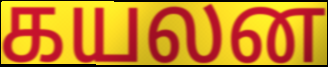
கயலன